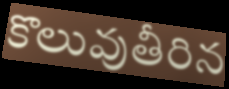
కొలువుతీరిన